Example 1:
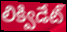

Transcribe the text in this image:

లిక్విడేట్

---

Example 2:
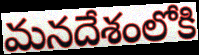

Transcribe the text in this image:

మనదేశంలోకి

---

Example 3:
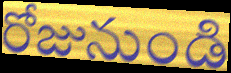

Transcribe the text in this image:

రోజునుండి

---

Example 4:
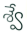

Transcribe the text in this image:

శ్వే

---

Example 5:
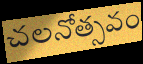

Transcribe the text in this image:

చలనోత్సవం